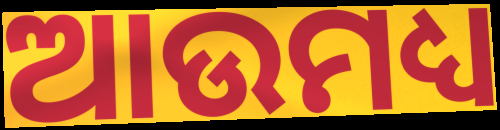
ଆଉମଧ୍ୟ